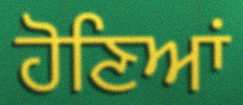
ਹੋਣਿਆਂ